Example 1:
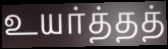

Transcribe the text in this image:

உயர்த்தத்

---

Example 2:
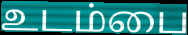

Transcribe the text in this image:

உடம்பை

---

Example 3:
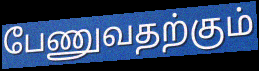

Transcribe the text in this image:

பேணுவதற்கும்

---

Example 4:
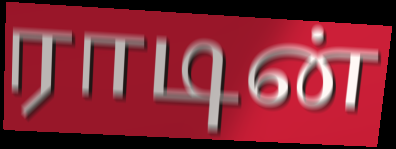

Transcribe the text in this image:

ராடின்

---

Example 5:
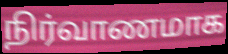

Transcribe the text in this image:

நிர்வாணமாக